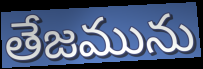
తేజమును